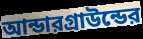
আন্ডারগ্রাউন্ডের